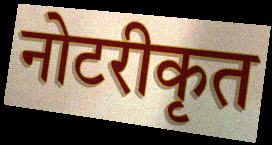
नोटरीकृत